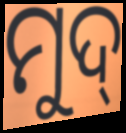
ମୁଦ୍